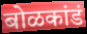
बोळकांडं